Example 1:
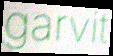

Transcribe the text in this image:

garvit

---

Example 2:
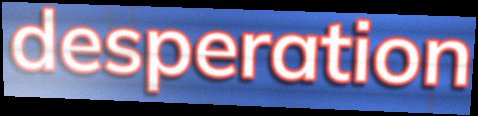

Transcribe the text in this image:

desperation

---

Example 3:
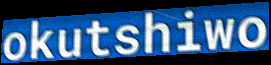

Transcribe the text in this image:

okutshiwo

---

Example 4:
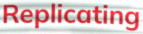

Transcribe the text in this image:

Replicating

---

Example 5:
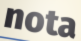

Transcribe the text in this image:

nota